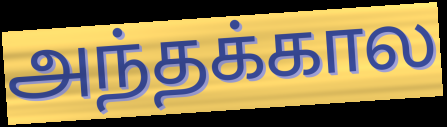
அந்தக்கால